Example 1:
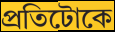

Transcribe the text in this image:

প্ৰতিটোকে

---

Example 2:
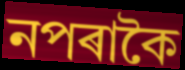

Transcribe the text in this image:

নপৰাকৈ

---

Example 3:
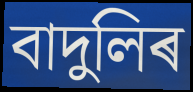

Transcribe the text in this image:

বাদুলিৰ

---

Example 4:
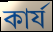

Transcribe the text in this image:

কাৰ্য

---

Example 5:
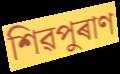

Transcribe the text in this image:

শিৱপুৰাণ